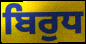
ਬਿਰੁਧ